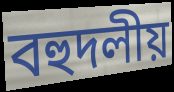
বহুদলীয়